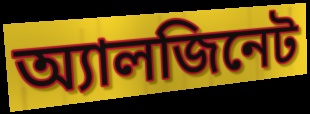
অ্যালজিনেট